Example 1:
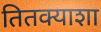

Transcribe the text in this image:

तितक्याशा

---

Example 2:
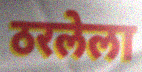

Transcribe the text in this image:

ठरलेला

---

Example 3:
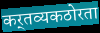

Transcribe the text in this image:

कर्तव्यकठोरता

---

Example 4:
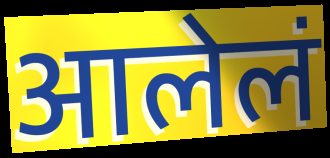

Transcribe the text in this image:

आलेलं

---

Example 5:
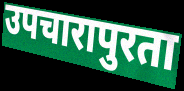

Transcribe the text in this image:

उपचारापुरता